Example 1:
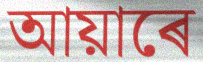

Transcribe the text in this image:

আয়াৰে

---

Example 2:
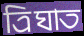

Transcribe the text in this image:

ত্ৰিঘাত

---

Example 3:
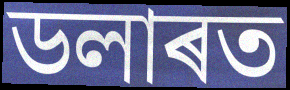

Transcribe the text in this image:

ডলাৰত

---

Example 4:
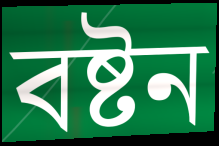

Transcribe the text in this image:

বষ্টন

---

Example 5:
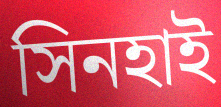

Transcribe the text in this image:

সিনহাই